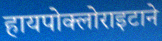
हायपोक्लोराइटाने